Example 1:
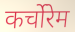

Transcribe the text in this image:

कर्चोरेम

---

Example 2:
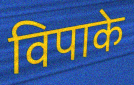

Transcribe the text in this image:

विपाके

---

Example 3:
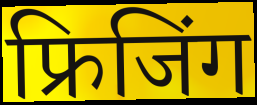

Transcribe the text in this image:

फ्रिजिंग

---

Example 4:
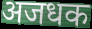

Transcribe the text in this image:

अजधक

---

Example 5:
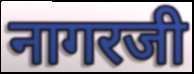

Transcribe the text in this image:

नागरजी